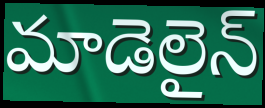
మాడెలైన్